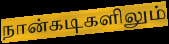
நான்கடிகளிலும்